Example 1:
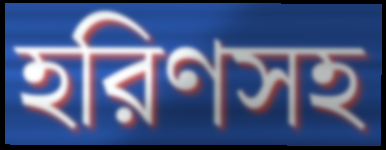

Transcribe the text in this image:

হরিণসহ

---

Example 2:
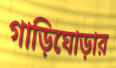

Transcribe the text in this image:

গাড়িঘোড়ার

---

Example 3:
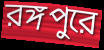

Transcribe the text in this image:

রঙ্গপুরে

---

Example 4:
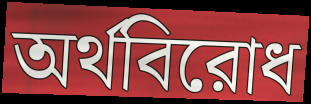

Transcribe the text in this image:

অর্থবিরোধ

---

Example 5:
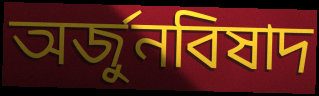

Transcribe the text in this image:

অর্জুনবিষাদ